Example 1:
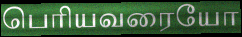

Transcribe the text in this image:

பெரியவரையோ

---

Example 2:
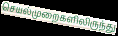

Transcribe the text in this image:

செயல்முறைகளிலிருந்து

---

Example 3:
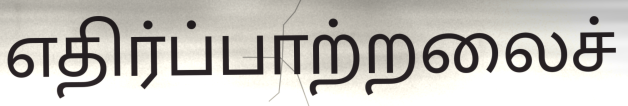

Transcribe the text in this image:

எதிர்ப்பாற்றலைச்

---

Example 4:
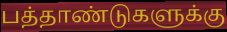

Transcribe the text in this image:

பத்தாண்டுகளுக்கு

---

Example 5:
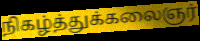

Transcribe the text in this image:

நிகழ்த்துக்கலைஞர்